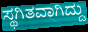
ಸ್ಥಗಿತವಾಗಿದ್ದು